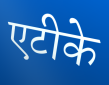
एटीके